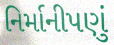
નિર્માનીપણું